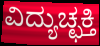
ವಿದ್ಯುಚ್ಛಕ್ತಿ